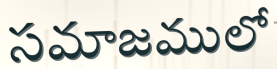
సమాజములో